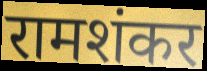
रामशंकर